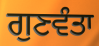
ਗੁਣਵੰਤਾ